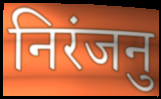
निरंजनु